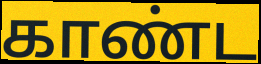
காண்ட